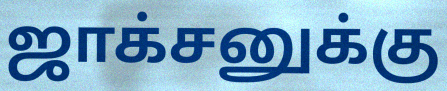
ஜாக்சனுக்கு